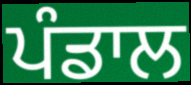
ਪੰਡਾਲ